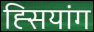
ह्सियांग